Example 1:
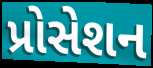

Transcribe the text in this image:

પ્રોસેશન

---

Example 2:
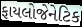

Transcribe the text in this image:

ફાયલોજેનેટિક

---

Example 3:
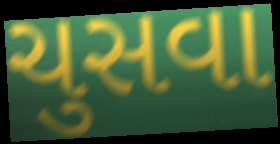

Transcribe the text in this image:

ચુસવા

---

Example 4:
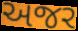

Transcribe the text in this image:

અજર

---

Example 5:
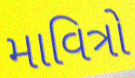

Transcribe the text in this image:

માવિત્રો